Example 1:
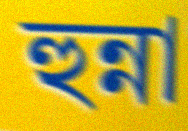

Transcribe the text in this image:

হুন্না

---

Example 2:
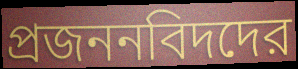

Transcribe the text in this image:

প্রজননবিদদের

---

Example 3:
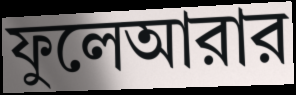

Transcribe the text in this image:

ফুলেআরার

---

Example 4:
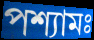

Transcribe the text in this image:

পশ্যামঃ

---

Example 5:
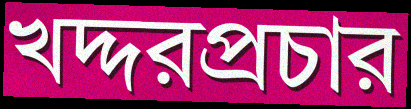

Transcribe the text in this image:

খদ্দরপ্রচার